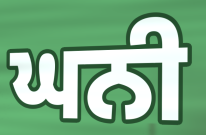
ਘਨੀ